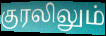
குரலிலும்